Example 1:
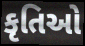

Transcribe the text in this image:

કૃતિઓ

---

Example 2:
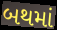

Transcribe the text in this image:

બથમાં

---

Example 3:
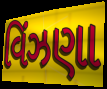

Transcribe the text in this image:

વિંઝણા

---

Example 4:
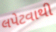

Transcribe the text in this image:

લપેટવાથી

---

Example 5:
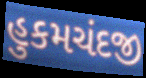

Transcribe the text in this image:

હુકમચંદજી